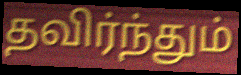
தவிர்ந்தும்